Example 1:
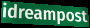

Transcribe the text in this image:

idreampost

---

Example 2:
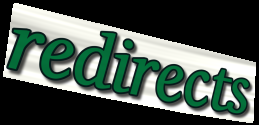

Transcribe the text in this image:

redirects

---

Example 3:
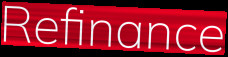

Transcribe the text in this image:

Refinance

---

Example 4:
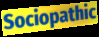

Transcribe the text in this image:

Sociopathic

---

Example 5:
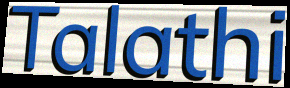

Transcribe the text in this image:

Talathi